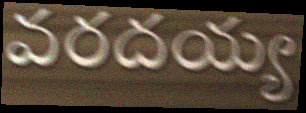
వరదయ్య